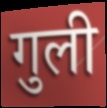
गुली